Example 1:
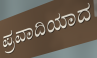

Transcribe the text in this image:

ಪ್ರವಾದಿಯಾದ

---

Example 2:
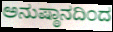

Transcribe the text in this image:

ಅನುಷ್ಠಾನದಿಂದ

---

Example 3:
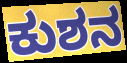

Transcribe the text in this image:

ಕುಶನ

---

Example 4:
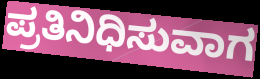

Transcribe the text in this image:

ಪ್ರತಿನಿಧಿಸುವಾಗ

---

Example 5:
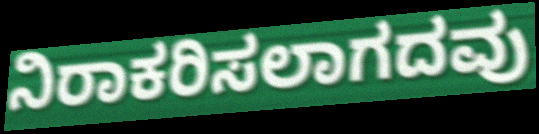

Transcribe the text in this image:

ನಿರಾಕರಿಸಲಾಗದವು